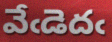
వేఁడెదఁ